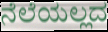
ನೆಲೆಯಲ್ಲದ